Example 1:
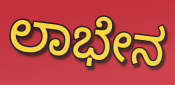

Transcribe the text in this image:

ಲಾಭೇನ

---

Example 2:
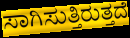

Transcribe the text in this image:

ಸಾಗಿಸುತ್ತಿರುತ್ತದೆ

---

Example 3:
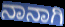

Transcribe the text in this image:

ನಾನಾಗಿ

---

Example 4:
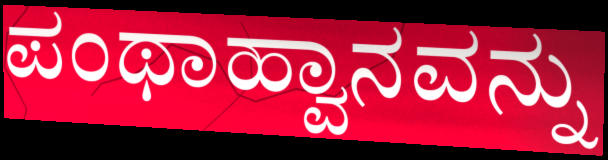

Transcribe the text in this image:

ಪಂಥಾಹ್ವಾನವನ್ನು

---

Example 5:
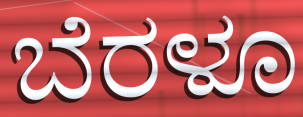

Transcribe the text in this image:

ಬೆರಳೂ